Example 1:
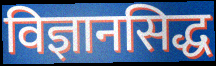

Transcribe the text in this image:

विज्ञानसिद्ध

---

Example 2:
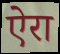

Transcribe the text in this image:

ऐरा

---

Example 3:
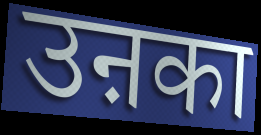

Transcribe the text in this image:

उऩका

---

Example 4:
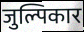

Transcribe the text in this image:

जुल्पिकार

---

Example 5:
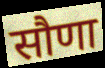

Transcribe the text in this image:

सौणा